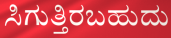
ಸಿಗುತ್ತಿರಬಹುದು